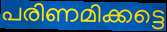
പരിണമിക്കട്ടെ